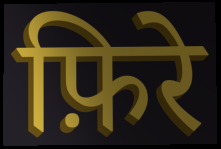
फ़िरे